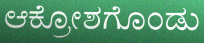
ಆಕ್ರೋಶಗೊಂಡು